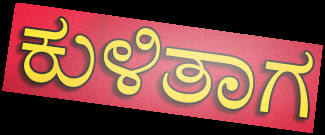
ಕುಳಿತಾಗ